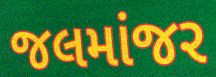
જલમાંજર